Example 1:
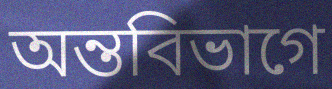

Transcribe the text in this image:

অন্তবিভাগে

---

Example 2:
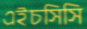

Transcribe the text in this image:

এইচসিসি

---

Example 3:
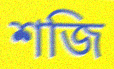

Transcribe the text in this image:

শজি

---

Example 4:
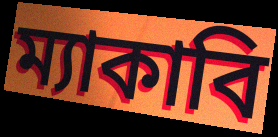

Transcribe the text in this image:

ম্যাকাবি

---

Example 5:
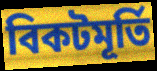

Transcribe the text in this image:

বিকটমূর্তি